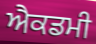
ਐਕਡਮੀ